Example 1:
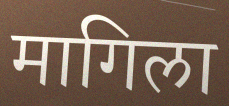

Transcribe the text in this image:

मागिला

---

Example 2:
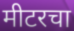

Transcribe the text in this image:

मीटरचा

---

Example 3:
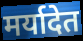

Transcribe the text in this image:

मर्यादेत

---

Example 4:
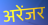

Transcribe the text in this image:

अरेंजर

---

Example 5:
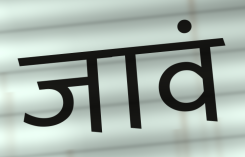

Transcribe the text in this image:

जावं